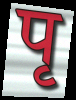
पृ